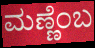
ಮಣ್ಣೆಂಬ